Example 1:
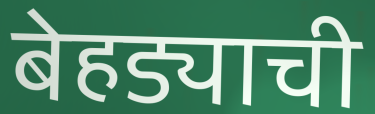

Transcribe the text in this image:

बेहड्याची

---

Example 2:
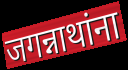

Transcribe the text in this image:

जगन्नाथांना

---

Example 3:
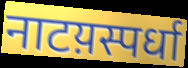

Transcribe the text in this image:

नाटय़स्पर्धा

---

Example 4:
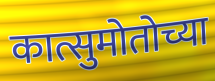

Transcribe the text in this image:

कात्सुमोतोच्या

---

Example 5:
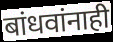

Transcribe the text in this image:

बांधवांनाही